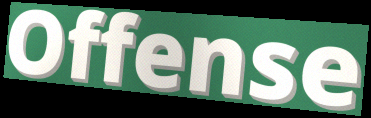
Offense